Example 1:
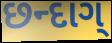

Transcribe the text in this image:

છન્દાગ્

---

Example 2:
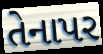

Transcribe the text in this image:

તેનાપર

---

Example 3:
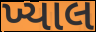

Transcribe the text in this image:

ખ્યાલ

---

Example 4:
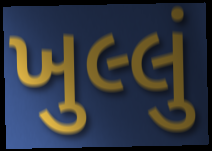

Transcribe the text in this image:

ખુલ્લું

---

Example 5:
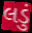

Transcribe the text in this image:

લડું